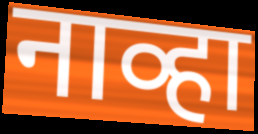
नाव्हा